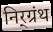
निर्ग्रंथ